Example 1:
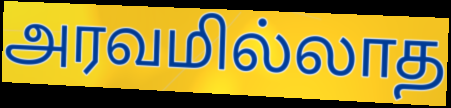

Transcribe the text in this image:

அரவமில்லாத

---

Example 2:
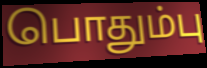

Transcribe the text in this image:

பொதும்பு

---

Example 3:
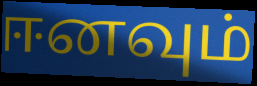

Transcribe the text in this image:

ஈனவும்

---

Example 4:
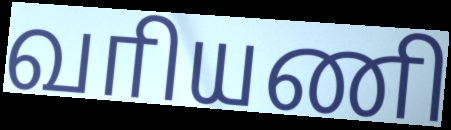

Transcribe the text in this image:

வரியணி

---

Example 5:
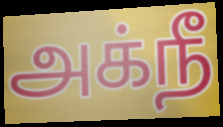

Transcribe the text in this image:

அக்நீ